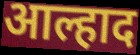
आल्हाद